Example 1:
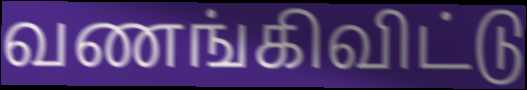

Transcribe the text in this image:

வணங்கிவிட்டு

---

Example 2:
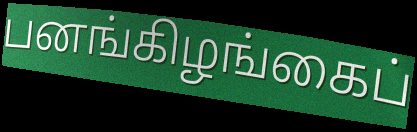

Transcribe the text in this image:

பனங்கிழங்கைப்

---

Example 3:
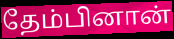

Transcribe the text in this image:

தேம்பினான்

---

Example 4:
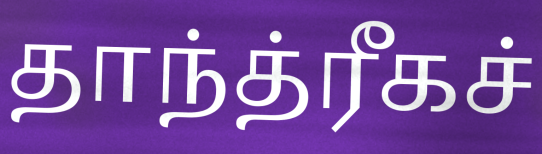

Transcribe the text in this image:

தாந்த்ரீகச்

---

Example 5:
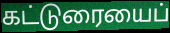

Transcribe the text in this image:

கட்டுரையைப்